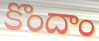
కొందాం